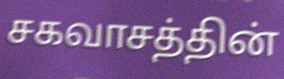
சகவாசத்தின்